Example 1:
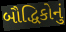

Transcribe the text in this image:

બૌદ્ધિકોનું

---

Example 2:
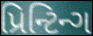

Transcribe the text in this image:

પ્રિન્ટિન્ગ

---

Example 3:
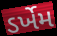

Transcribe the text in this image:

ડર્ખેમ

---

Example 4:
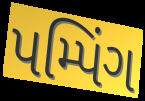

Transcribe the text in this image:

પમ્પિંગ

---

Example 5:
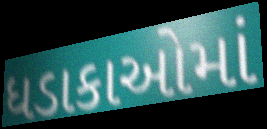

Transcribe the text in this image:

ધડાકાઓમાં